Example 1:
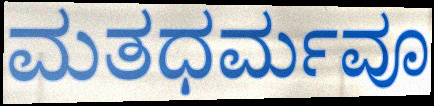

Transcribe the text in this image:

ಮತಧರ್ಮವೂ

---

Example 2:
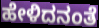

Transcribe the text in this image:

ಹೇಳಿದನಂತೆ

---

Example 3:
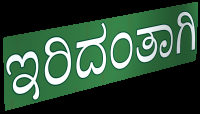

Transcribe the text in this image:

ಇರಿದಂತಾಗಿ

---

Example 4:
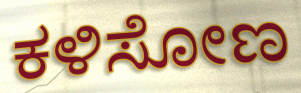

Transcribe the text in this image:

ಕಳಿಸೋಣ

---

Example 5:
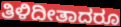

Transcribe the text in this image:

ತಿಳಿದೀತಾದರೂ